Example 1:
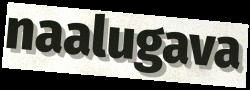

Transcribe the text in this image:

naalugava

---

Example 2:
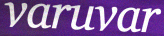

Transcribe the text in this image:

varuvar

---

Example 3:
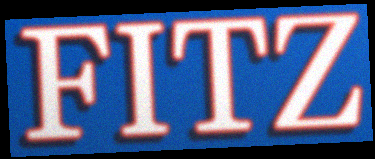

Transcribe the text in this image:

FITZ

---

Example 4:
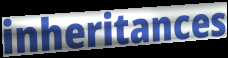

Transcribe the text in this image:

inheritances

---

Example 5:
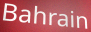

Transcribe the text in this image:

Bahrain